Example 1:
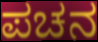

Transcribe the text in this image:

ಪಚನ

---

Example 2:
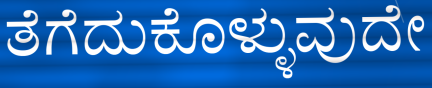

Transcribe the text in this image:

ತೆಗೆದುಕೊಳ್ಳುವುದೇ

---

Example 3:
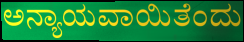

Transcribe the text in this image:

ಅನ್ಯಾಯವಾಯಿತೆಂದು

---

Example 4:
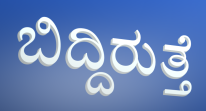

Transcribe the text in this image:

ಬಿದ್ದಿರುತ್ತೆ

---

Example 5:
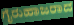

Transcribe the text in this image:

ಗೈರುಹಾಜರಾದ